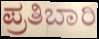
ಪ್ರತಿಬಾರಿ